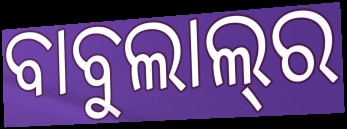
ବାବୁଲାଲ୍‍ର